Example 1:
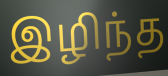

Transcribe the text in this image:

இழிந்த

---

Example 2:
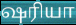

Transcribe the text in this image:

ஷரியா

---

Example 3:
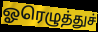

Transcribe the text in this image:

ஓரெழுத்துச்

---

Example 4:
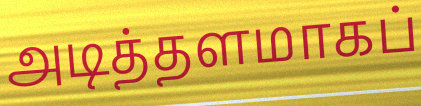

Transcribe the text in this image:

அடித்தளமாகப்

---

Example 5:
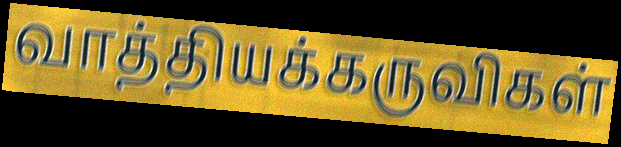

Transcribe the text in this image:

வாத்தியக்கருவிகள்